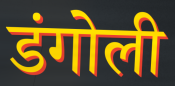
डंगोली